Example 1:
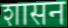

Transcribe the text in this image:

शासन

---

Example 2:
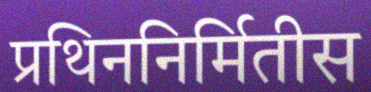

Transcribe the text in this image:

प्रथिननिर्मितीस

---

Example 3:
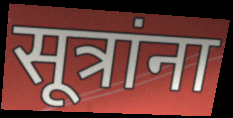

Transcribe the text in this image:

सूत्रांना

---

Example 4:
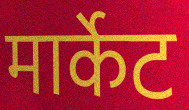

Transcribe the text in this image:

मार्केट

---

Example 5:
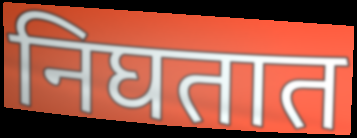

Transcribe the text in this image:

निघतात